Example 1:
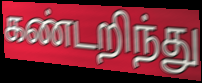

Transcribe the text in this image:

கண்டறிந்து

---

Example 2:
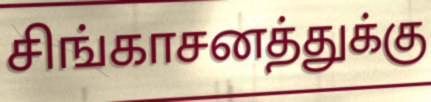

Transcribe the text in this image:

சிங்காசனத்துக்கு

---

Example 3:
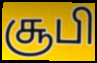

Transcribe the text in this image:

சூபி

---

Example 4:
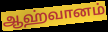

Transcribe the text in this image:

ஆஹ்வானம்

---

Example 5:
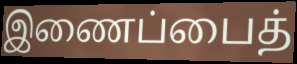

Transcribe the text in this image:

இணைப்பைத்